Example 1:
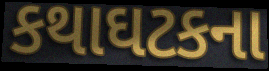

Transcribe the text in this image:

કથાઘટકના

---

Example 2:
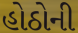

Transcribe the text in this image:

હોઠોની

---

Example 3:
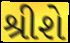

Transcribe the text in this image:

શ્રીશે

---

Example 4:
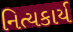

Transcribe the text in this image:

નિત્યકાર્ય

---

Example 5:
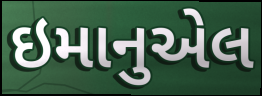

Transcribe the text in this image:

ઇમાનુએલ